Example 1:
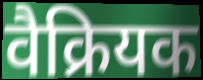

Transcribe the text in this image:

वैक्रियक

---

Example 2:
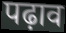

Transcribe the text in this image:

पढ़ाव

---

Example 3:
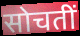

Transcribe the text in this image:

सोचतीं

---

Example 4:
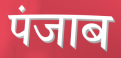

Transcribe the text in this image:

पंजाब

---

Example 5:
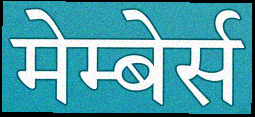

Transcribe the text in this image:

मेम्बेर्स